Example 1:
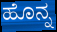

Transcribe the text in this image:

ಹೊನ್ನ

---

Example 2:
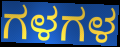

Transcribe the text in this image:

ಗಳಗಳ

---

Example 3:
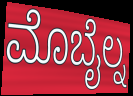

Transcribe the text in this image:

ಮೊಬೈಲ್ನ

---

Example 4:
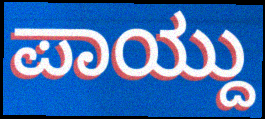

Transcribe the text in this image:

ಪಾಯ್ದು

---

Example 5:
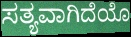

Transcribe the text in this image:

ಸತ್ಯವಾಗಿದೆಯೊ